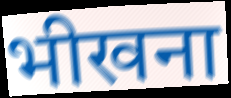
भीखना